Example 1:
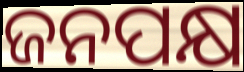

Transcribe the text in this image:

ଜନପକ୍ଷ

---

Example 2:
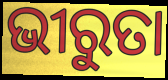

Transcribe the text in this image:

ଭୀରୁତା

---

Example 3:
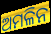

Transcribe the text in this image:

ଅମଳିନ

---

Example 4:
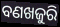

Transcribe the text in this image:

ବଣଖଜୁରି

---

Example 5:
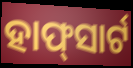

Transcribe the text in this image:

ହାଫ୍‍ସାର୍ଟ